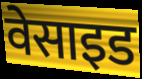
वेसाइड